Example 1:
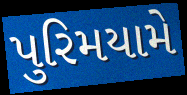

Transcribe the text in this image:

પુરિમયામે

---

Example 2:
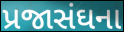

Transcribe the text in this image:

પ્રજાસંઘના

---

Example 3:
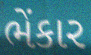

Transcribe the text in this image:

ભેંકાર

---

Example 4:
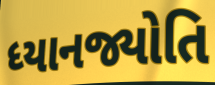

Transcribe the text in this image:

ધ્યાનજ્યોતિ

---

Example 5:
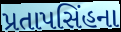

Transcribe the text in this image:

પ્રતાપસિંહના